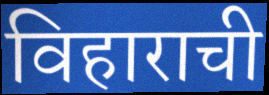
विहाराची